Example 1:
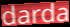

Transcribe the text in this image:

darda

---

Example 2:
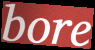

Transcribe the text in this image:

bore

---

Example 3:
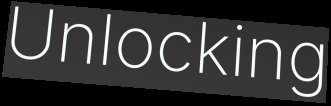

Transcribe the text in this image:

Unlocking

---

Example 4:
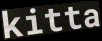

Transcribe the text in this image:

kitta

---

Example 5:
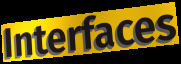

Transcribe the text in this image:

Interfaces